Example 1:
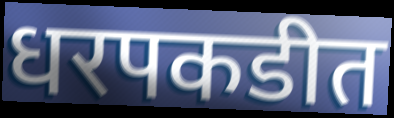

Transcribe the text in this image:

धरपकडीत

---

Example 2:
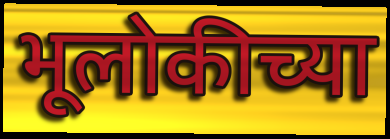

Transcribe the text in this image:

भूलोकीच्या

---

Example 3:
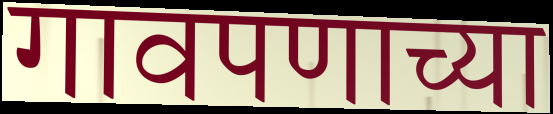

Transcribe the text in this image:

गावपणाच्या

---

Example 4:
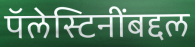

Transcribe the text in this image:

पॅलेस्टिनींबद्दल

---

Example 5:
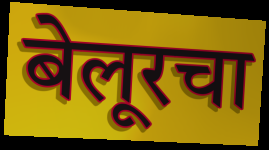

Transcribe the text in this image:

बेलूरचा